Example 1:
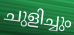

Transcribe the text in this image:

ചുളിച്ചും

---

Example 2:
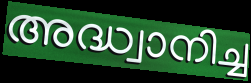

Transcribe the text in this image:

അദ്ധ്വാനിച്ച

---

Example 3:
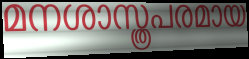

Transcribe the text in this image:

മനശാസ്ത്രപരമായ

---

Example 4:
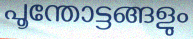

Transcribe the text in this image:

പൂന്തോട്ടങ്ങളും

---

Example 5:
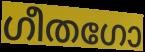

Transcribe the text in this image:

ഗീതഗോ